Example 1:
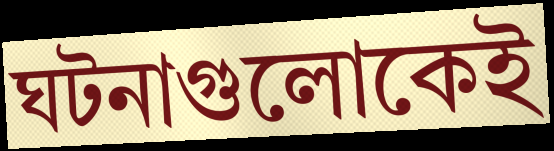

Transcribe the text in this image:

ঘটনাগুলোকেই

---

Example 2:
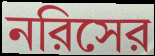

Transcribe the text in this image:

নরিসের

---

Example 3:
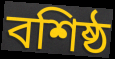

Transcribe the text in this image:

বশিষ্ঠ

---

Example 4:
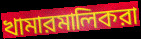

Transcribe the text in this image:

খামারমালিকরা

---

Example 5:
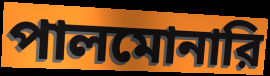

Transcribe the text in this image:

পালমোনারি